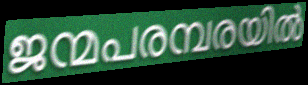
ജന്മപരമ്പരയിൽ